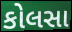
કોલસા